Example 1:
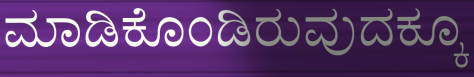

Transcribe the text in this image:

ಮಾಡಿಕೊಂಡಿರುವುದಕ್ಕೂ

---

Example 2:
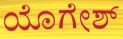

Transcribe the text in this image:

ಯೊಗೇಶ್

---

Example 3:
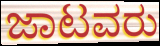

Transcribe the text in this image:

ಜಾಟವರು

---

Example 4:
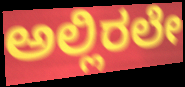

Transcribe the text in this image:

ಅಲ್ಲಿರಲೇ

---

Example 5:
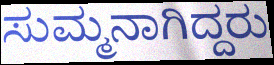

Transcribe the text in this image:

ಸುಮ್ಮನಾಗಿದ್ದರು